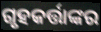
ଗୃହକର୍ତ୍ତାଙ୍କର